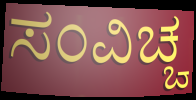
ಸಂವಿಚ್ಚ